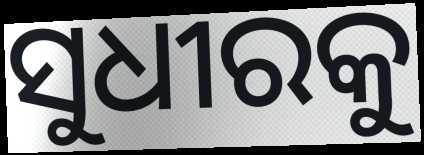
ସୁଧୀରକୁ